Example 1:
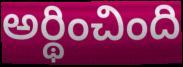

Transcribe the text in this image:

అర్థించింది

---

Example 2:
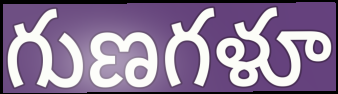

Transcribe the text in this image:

గుణగళూ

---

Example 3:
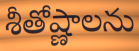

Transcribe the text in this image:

శీతోష్ణాలను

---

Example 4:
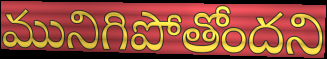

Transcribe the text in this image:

మునిగిపోతోందని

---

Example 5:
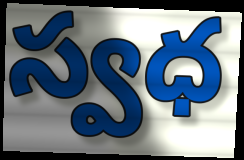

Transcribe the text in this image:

స్వధ